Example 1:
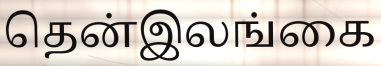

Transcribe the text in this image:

தென்இலங்கை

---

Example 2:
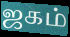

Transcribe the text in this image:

ஜகம்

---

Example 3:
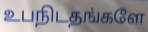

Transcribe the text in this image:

உபநிடதங்களே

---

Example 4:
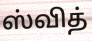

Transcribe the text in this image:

ஸ்வித்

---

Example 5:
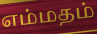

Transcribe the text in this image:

எம்மதம்